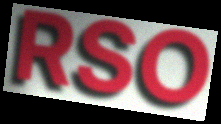
RSO